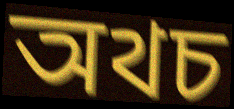
অথচ